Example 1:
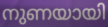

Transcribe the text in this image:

നുണയായി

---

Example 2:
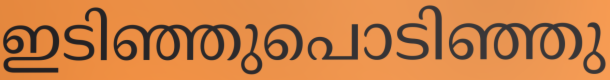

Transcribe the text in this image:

ഇടിഞ്ഞുപൊടിഞ്ഞു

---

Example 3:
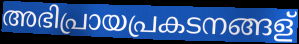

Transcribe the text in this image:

അഭിപ്രായപ്രകടനങ്ങള്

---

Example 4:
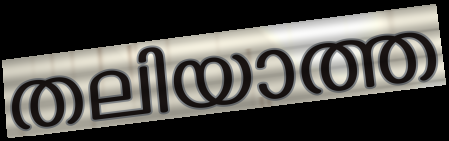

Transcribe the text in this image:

തലിയാത്ത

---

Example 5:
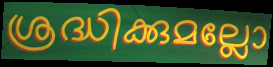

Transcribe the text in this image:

ശ്രദ്ധിക്കുമല്ലോ